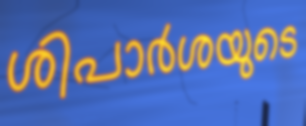
ശിപാർശയുടെ